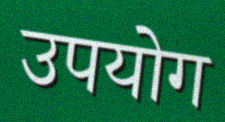
उपयोग